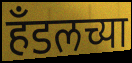
हॅंडलच्या